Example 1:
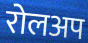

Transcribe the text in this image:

रोलअप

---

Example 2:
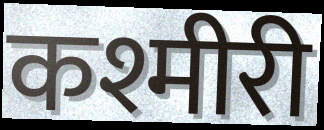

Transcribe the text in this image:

कश्मीरी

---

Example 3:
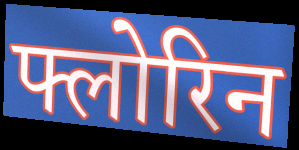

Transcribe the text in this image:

फ्लोरिन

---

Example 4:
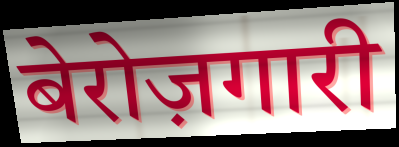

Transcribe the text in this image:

बेरोज़गारी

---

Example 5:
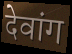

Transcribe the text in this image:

देवांग